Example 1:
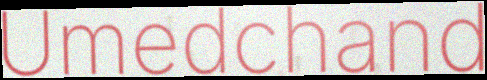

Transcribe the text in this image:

Umedchand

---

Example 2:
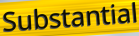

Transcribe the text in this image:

Substantial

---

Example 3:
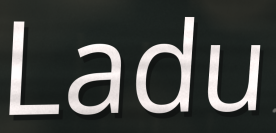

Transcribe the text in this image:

Ladu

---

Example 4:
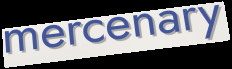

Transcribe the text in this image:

mercenary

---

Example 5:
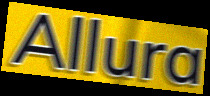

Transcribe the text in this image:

Allura